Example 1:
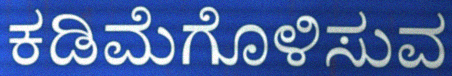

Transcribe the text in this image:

ಕಡಿಮೆಗೊಳಿಸುವ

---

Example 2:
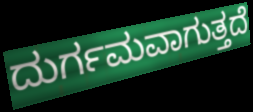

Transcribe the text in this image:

ದುರ್ಗಮವಾಗುತ್ತದೆ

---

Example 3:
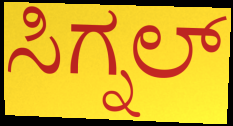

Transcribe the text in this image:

ಸಿಗ್ನಲ್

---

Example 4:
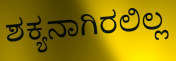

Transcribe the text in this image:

ಶಕ್ಯನಾಗಿರಲಿಲ್ಲ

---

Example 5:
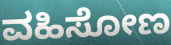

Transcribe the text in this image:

ವಹಿಸೋಣ